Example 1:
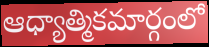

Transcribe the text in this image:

ఆధ్యాత్మికమార్గంలో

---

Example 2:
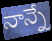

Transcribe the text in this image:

నాన్నే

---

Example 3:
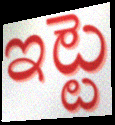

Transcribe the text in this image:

ఇట్టె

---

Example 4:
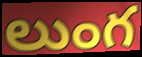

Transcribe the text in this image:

లుంగ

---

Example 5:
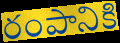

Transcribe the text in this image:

రంపానికి